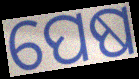
ପେଷ